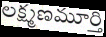
లక్ష్మణమూర్తి